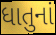
ધાતુનાં